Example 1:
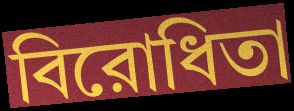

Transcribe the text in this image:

বিরোধিতা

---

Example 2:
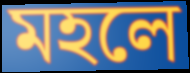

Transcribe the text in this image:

মহলে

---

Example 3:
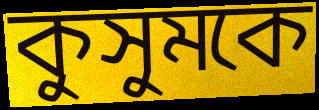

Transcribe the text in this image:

কুসুমকে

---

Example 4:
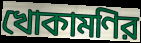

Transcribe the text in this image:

খোকামণির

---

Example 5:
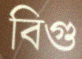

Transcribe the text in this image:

বিগু